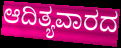
ಆದಿತ್ಯವಾರದ